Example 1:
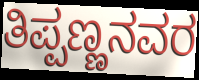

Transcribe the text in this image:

ತಿಪ್ಪಣ್ಣನವರ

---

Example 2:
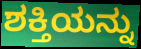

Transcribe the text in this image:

ಶಕ್ತಿಯನ್ನು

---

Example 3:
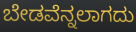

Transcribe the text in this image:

ಬೇಡವೆನ್ನಲಾಗದು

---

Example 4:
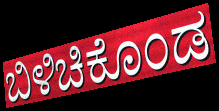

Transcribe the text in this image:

ಬಿಳಿಚಿಕೊಂಡ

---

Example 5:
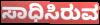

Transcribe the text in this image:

ಸಾಧಿಸಿರುವ